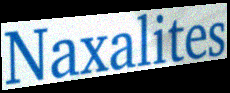
Naxalites